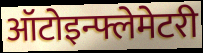
ऑटोइन्फ्लेमेटरी